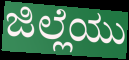
ಜಿಲ್ಲೆಯು